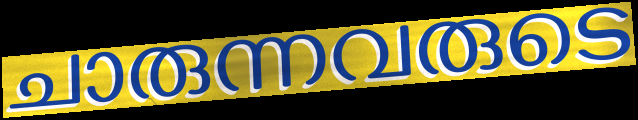
ചാരുന്നവരുടെ